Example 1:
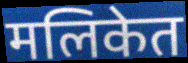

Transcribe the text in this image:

मलिकेत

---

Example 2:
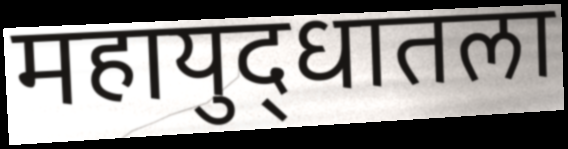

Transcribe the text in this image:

महायुद्धातला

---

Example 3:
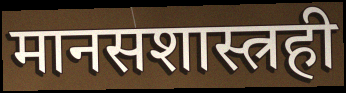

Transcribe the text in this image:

मानसशास्त्रही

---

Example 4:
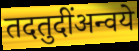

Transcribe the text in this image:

तदतुदींअन्वये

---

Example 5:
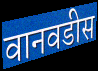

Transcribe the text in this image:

वानवडीस